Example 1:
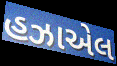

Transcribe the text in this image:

હઝાએલ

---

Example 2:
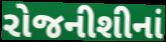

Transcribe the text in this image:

રોજનીશીનાં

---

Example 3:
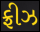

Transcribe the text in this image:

ફ્રીઝ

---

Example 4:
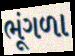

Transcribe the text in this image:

ભૂંગળા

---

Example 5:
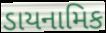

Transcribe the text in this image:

ડાયનામિક